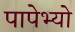
पापेभ्यो